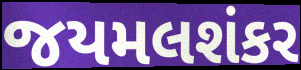
જયમલશંકર